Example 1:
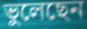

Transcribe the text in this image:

ভুলেছেন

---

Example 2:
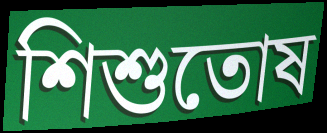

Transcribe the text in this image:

শিশুতোষ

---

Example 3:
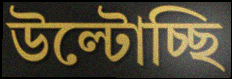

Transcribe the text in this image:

উল্টোচ্ছি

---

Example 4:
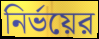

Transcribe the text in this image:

নির্ভয়ের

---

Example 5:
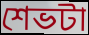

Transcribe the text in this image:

শেভটা